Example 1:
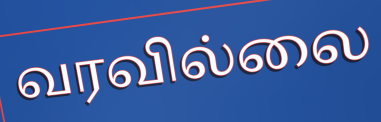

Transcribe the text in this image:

வரவில்லை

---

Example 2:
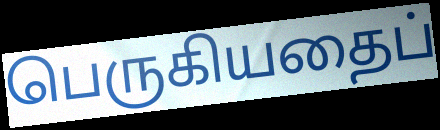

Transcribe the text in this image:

பெருகியதைப்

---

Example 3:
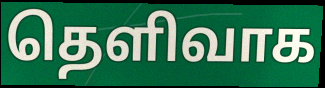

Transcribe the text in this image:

தெளிவாக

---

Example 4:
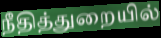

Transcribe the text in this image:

நீதித்துறையில்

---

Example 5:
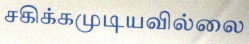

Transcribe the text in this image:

சகிக்கமுடியவில்லை